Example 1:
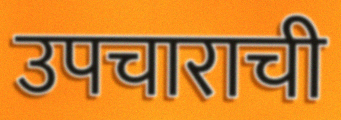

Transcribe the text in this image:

उपचाराची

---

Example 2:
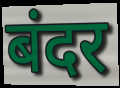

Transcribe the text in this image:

बंदर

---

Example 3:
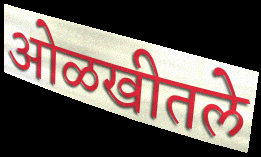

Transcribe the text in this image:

ओळखीतले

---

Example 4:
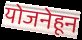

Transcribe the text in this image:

योजनेहून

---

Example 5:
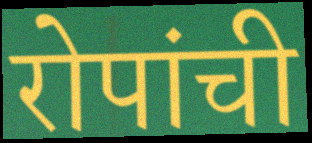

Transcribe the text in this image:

रोपांची